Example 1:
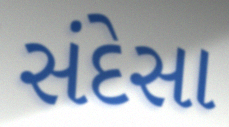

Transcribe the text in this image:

સંદેસા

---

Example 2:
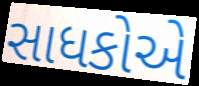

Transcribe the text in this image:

સાધકોએ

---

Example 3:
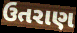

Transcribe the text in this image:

ઉતરાણ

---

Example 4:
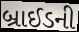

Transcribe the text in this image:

બ્રાઈડની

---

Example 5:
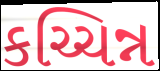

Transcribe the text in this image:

કચ્ચિન્ન